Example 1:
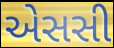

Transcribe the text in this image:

એસસી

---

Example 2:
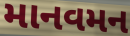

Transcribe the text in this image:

માનવમન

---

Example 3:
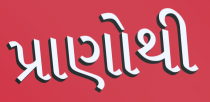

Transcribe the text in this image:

પ્રાણોથી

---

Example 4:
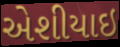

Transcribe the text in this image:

એશીયાઇ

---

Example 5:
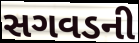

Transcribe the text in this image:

સગવડની